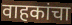
वाहकांचा